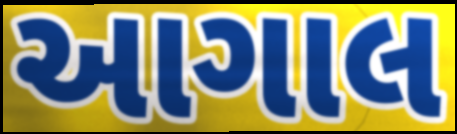
આગાલ